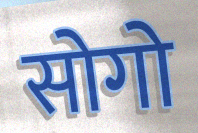
सोगो